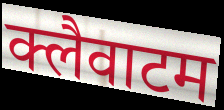
क्लैवाटम